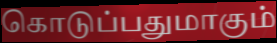
கொடுப்பதுமாகும்